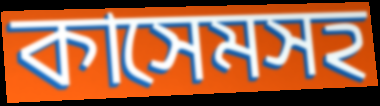
কাসেমসহ